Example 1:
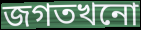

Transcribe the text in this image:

জগতখনো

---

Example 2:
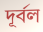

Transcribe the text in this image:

দূৰ্বল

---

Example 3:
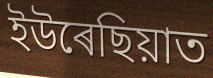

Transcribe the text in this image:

ইউৰেছিয়াত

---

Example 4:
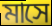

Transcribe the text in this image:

মাসে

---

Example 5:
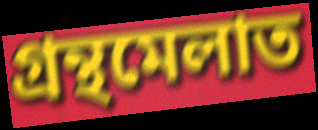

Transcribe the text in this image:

গ্ৰন্থমেলাত